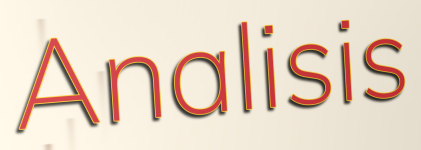
Analisis